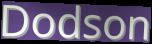
Dodson